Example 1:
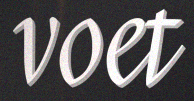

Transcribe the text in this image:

voet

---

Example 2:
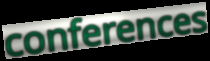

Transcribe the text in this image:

conferences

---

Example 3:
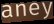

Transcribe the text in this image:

aney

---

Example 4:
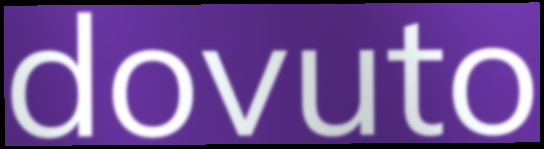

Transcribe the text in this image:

dovuto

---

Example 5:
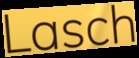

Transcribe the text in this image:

Lasch